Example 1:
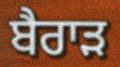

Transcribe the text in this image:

ਬੈਰਾੜ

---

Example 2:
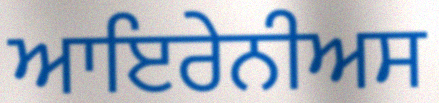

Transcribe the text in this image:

ਆਇਰੇਨੀਅਸ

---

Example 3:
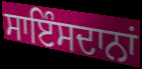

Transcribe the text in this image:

ਸਾਇੰਸਦਾਨਾਂ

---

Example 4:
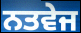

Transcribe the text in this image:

ਨਤਵੇਜ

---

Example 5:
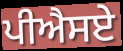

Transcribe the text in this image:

ਪੀਐਸਏ